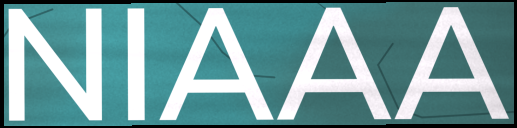
NIAAA